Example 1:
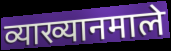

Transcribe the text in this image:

व्याख्यानमाले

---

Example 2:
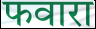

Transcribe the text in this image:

फवारा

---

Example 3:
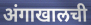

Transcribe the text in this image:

अंगाखालची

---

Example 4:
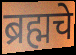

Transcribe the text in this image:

ब्रह्मचे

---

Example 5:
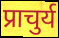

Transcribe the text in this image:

प्राचुर्य